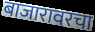
बाजारावरचा